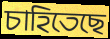
চাহিতেছে